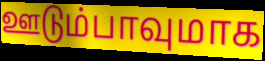
ஊடும்பாவுமாக